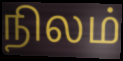
நிலம்